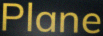
Plane